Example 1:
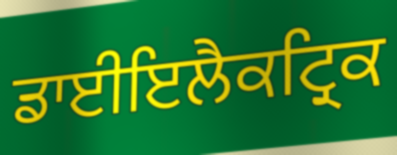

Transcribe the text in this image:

ਡਾਈਇਲੈਕਟ੍ਰਿਕ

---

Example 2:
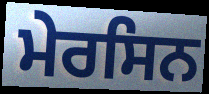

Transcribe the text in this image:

ਮੇਰਸਿਨ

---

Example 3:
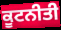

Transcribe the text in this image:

ਕੂਟਨੀਤੀ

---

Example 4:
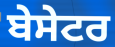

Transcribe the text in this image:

ਬੇਸੇਟਰ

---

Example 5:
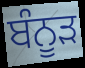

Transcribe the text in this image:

ਬੰਨੂੜ